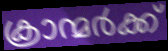
ക്രാന്മർക്ക്